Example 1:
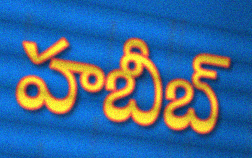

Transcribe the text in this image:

హబీబ్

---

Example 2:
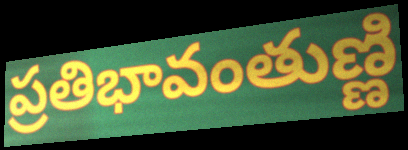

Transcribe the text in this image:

ప్రతిభావంతుణ్ణి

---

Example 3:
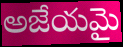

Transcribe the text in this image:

అజేయమై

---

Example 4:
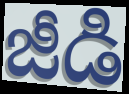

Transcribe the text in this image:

జీడి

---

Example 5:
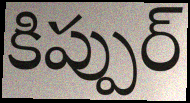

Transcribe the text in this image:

కిప్పుర్